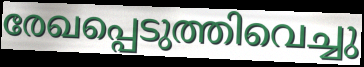
രേഖപ്പെടുത്തിവെച്ചു